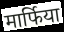
मार्फिया